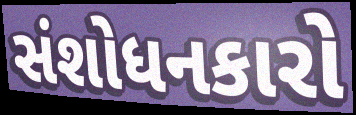
સંશોધનકારો